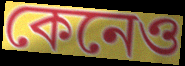
কেনেও